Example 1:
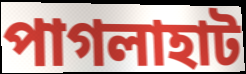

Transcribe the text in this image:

পাগলাহাট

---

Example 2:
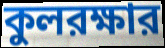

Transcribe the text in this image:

কুলরক্ষার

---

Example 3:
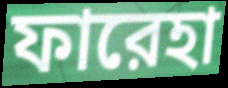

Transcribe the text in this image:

ফারেহা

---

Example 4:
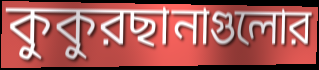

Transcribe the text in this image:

কুকুরছানাগুলোর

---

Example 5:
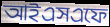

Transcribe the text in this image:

আইএসএফে